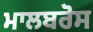
ਮਾਲਬਰੋਸ